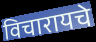
विचारायचे